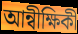
আন্বীক্ষিকী